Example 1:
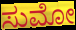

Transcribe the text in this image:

ಸುಮೋ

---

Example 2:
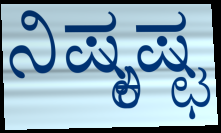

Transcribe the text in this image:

ನಿಷ್ಕೃಷ್ಟ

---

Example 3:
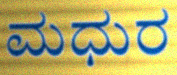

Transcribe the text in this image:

ಮಧುರ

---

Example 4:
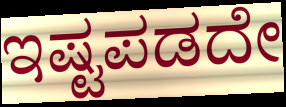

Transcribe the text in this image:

ಇಷ್ಟಪಡದೇ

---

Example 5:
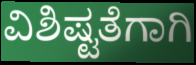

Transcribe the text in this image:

ವಿಶಿಷ್ಟತೆಗಾಗಿ